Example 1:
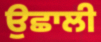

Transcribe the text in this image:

ਉਛਾਲੀ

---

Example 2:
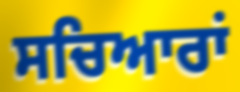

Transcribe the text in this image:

ਸਚਿਆਰਾਂ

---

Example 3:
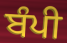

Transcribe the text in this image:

ਬੰਪੀ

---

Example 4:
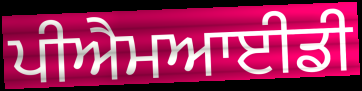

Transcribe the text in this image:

ਪੀਐਮਆਈਡੀ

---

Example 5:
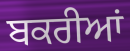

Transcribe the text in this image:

ਬਕਰੀਆਂ